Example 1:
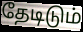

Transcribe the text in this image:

தேடிடும்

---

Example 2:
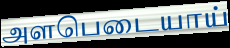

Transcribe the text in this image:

அளபெடையாய்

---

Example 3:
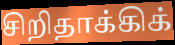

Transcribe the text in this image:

சிறிதாக்கிக்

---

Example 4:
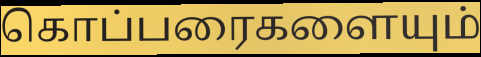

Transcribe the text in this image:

கொப்பரைகளையும்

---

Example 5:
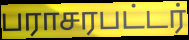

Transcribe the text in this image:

பராசரபட்டர்